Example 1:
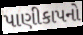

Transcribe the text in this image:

પાણીકાપનો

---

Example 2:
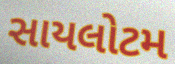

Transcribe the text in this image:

સાયલોટમ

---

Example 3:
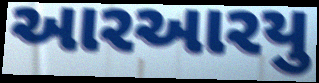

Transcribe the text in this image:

આરઆરયુ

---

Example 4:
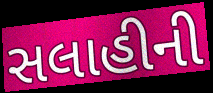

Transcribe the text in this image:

સલાહીની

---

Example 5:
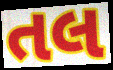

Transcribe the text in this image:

તલ